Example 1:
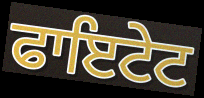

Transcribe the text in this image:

ਫਾਇਟੇਟ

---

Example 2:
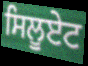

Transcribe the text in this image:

ਸਿਲੂਏਟ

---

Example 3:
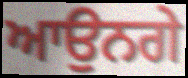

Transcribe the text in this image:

ਆਉਨਗੇ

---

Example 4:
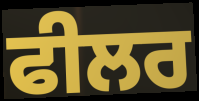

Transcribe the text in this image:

ਫੀਲਰ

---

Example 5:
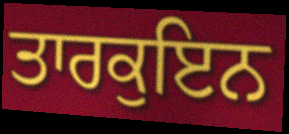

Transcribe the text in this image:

ਤਾਰਕੁਇਨ